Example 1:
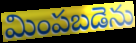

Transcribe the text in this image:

మింపబడెను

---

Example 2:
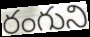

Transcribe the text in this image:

రంగుని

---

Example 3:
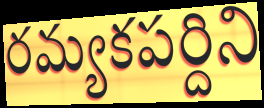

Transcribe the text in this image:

రమ్యకపర్దిని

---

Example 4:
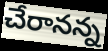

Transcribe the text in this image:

చేరానన్న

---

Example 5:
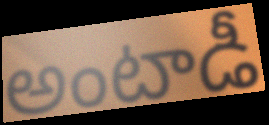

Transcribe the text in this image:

అంటాడీ